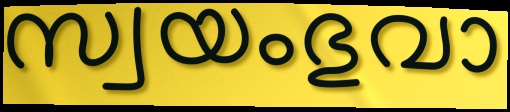
സ്വയംഭുവാ